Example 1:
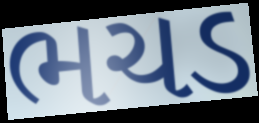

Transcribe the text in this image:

ભચડ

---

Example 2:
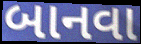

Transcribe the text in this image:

બાનવા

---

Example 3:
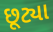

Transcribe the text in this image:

છૂટ્યા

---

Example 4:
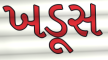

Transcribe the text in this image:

ખડૂસ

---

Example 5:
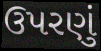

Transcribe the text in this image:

ઉપરણું